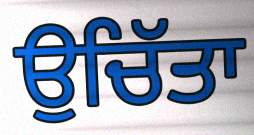
ਉਚਿੱਤਾ